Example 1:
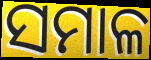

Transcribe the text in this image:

ସମାଳ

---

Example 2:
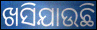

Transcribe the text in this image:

ଖସିଯାଉଛି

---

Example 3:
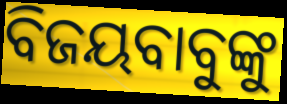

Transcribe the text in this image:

ବିଜୟବାବୁଙ୍କୁ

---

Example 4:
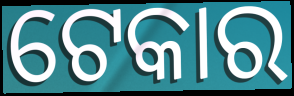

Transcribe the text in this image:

ଟେକାର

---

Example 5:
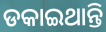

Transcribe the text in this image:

ଡକାଇଥାନ୍ତି